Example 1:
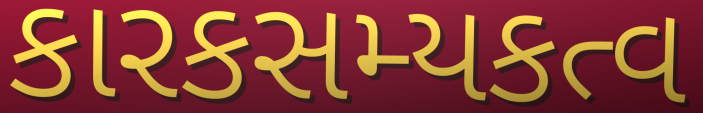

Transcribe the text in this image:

કારકસમ્યકત્વ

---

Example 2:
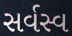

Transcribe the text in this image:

સર્વસ્વ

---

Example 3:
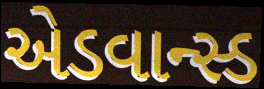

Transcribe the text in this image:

એડવાન્સ્ડ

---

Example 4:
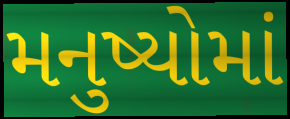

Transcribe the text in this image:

મનુષ્યોમાં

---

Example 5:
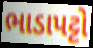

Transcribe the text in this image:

ભાડાપટ્ટો